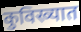
कुविख्यात